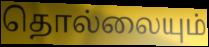
தொல்லையும்